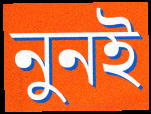
নুনই